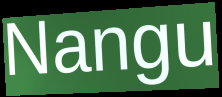
Nangu